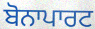
ਬੋਨਾਪਾਰਟ